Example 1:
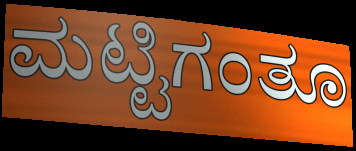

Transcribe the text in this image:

ಮಟ್ಟಿಗಂತೂ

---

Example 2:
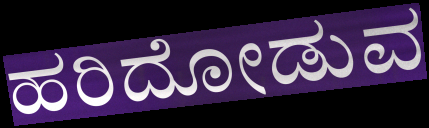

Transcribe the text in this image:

ಹರಿದೋಡುವ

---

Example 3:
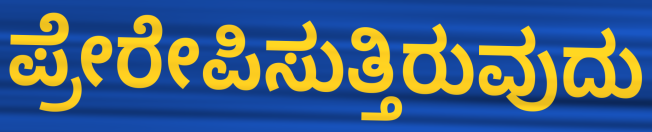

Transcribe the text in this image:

ಪ್ರೇರೇಪಿಸುತ್ತಿರುವುದು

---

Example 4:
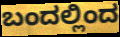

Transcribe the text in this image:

ಬಂದಲ್ಲಿಂದ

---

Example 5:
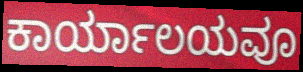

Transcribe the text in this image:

ಕಾರ್ಯಾಲಯವೂ